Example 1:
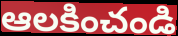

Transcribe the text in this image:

ఆలకించండి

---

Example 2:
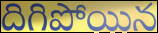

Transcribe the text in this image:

దిగిపోయిన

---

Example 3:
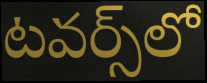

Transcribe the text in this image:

టవర్స్‌లో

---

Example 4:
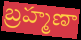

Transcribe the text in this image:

బ్రహ్మణా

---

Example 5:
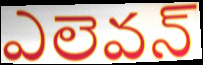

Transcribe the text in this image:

ఎలెవన్